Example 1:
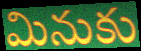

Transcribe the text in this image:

మినుకు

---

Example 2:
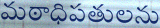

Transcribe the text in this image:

మఠాధిపతులను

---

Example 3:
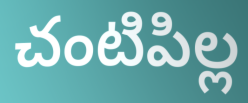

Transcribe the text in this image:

చంటిపిల్ల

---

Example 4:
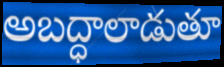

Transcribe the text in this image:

అబద్ధాలాడుతూ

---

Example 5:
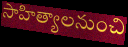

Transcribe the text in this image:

సాహిత్యాలనుంచి